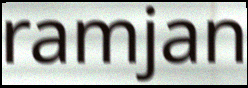
ramjan